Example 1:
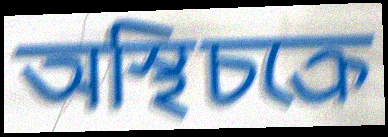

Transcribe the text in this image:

অস্থিচক্রে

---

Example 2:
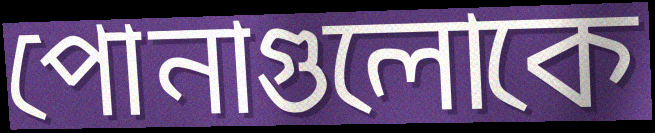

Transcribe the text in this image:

পোনাগুলোকে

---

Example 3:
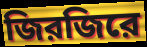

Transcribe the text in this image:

জিরজিরে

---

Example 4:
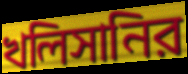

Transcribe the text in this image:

খলিসানির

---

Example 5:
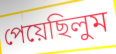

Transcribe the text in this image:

পেয়েছিলুম